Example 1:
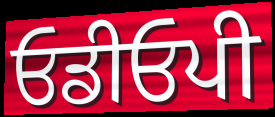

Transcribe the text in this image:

ਓਡੀਓਪੀ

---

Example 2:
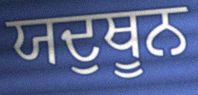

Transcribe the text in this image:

ਯਦੁਥੂਨ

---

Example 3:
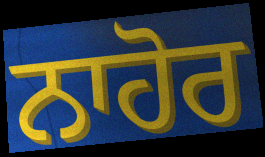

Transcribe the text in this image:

ਨਾਹੋਰ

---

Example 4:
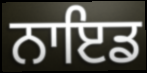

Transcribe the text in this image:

ਨਾਇਡ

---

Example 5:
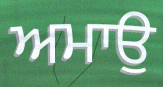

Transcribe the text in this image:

ਅਮਾਉ